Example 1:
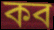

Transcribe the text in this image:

কব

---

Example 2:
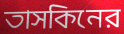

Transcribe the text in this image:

তাসকিনের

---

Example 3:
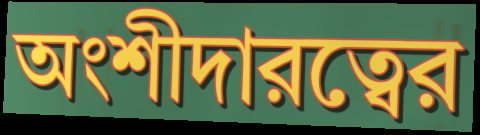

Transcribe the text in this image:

অংশীদারত্বের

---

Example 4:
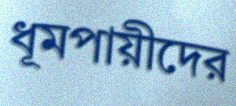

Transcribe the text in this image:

ধূমপায়ীদের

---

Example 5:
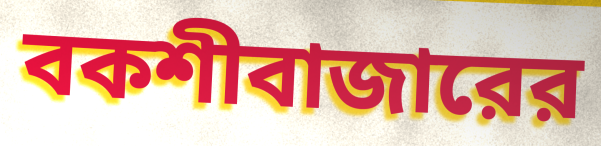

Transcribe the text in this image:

বকশীবাজারের